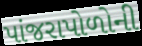
પાંજરાપોળોની